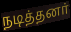
நடித்தனர்